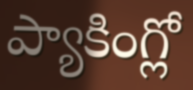
ప్యాకింగ్లో